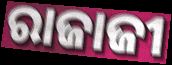
ରାଜାଜୀ